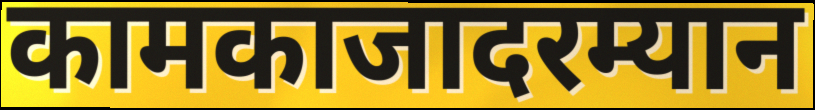
कामकाजादरम्यान